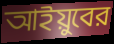
আইয়ুবের